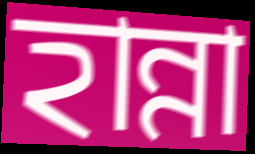
হান্না